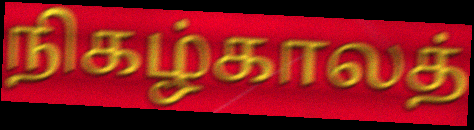
நிகழ்காலத்